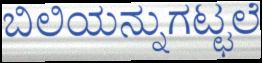
ಬಿಲಿಯನ್ನುಗಟ್ಟಲೆ